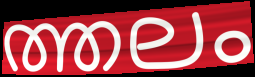
ത്തലം